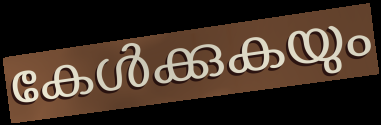
കേൾക്കുകയും